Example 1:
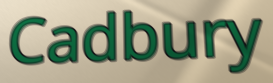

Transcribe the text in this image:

Cadbury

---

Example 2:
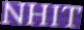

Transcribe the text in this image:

NHIT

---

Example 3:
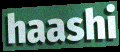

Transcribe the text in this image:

haashi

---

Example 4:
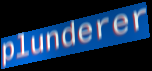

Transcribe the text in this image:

plunderer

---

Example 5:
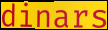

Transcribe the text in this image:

dinars